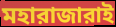
মহারাজারাই